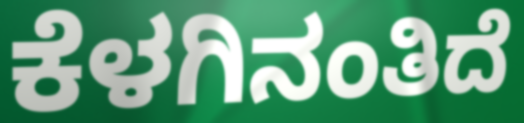
ಕೆಳಗಿನಂತಿದೆ